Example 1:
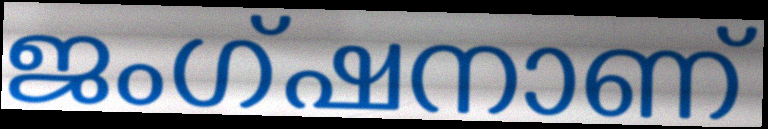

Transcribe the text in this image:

ജംഗ്ഷനാണ്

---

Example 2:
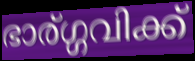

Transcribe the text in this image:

ഭാര്ഗ്ഗവിക്ക്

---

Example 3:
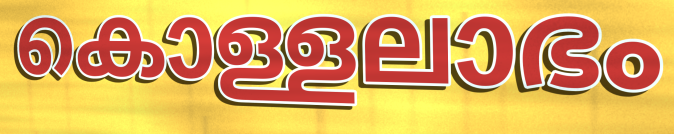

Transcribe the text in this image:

കൊള്ളലാഭം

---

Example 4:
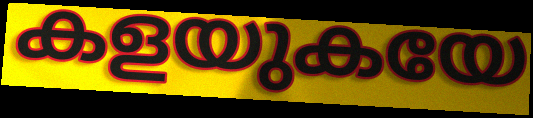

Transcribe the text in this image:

കളയുകയേ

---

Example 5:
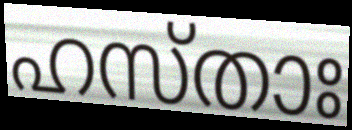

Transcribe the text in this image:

ഹസ്താഃ